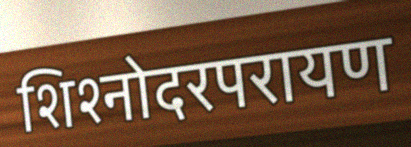
शिश्नोदरपरायण